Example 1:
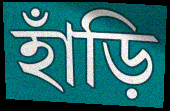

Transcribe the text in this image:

হাঁড়ি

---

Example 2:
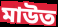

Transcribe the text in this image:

মাউত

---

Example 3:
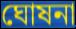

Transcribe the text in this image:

ঘোষনা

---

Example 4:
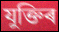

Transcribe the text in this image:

যুক্তিৰ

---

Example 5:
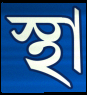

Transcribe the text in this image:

স্থা